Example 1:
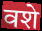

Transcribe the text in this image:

वशे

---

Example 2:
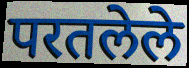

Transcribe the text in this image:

परतलेले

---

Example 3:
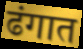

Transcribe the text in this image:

ढंगात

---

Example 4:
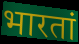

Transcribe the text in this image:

भारतां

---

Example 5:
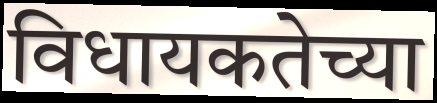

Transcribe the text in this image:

विधायकतेच्या